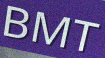
BMT